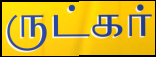
ருட்கர்